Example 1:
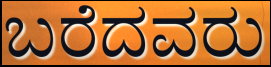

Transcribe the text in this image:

ಬರೆದವರು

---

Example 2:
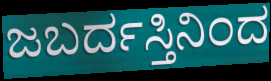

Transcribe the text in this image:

ಜಬರ್ದಸ್ತಿನಿಂದ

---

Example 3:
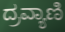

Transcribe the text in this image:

ದ್ರವ್ಯಾಣಿ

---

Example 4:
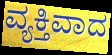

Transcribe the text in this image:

ವ್ಯಕ್ತಿವಾದ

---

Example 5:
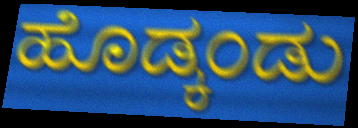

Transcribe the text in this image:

ಹೊಡ್ಕಂಡು